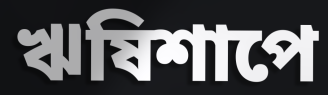
ঋষিশাপে